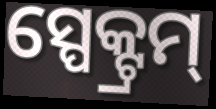
ସ୍ପେକ୍ଟ୍ରମ୍